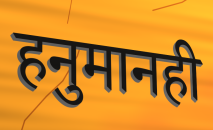
हनुमानही